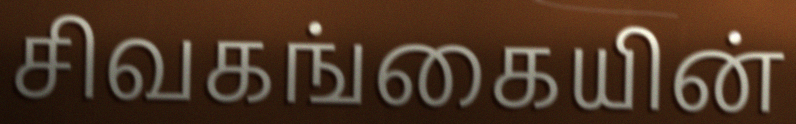
சிவகங்கையின்